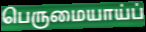
பெருமையாய்ப்